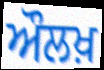
ਔਲਖ਼